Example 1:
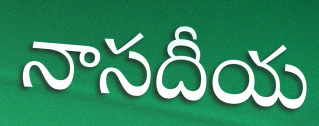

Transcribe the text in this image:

నాసదీయ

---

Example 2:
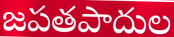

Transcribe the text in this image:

జపతపాదుల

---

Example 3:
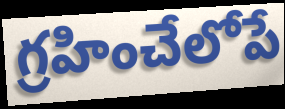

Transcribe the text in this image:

గ్రహించేలోపే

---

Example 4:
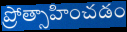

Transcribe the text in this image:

ప్రోత్సాహించడం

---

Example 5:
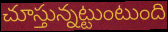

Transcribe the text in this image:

చూస్తున్నట్టుంటుంది